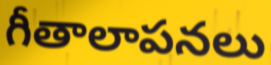
గీతాలాపనలు